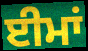
ਈਮਾਂ